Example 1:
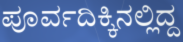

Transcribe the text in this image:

ಪೂರ್ವದಿಕ್ಕಿನಲ್ಲಿದ್ದ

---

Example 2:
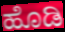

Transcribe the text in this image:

ಹೊಡಿ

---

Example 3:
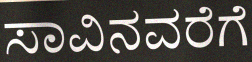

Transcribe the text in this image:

ಸಾವಿನವರೆಗೆ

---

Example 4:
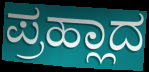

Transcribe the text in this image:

ಪ್ರಹ್ಲಾದ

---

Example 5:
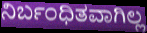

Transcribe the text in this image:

ನಿರ್ಬಂಧಿತವಾಗಿಲ್ಲ